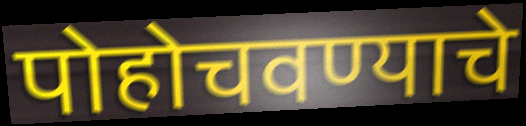
पोहोचवण्याचे